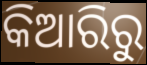
କିଆରିରୁ